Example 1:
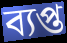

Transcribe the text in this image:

ব্যপ্ত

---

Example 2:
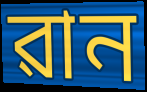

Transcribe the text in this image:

ৱান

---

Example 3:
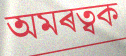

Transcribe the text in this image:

অমৰত্বক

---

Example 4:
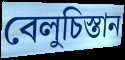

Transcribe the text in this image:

বেলুচিস্তান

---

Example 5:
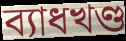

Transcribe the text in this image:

ব্যাধখণ্ড